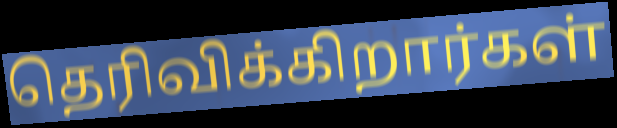
தெரிவிக்கிறார்கள்